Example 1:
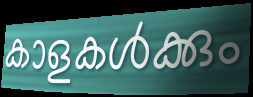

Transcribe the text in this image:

കാളകൾക്കും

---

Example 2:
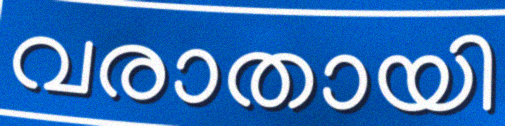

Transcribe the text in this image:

വരാതായി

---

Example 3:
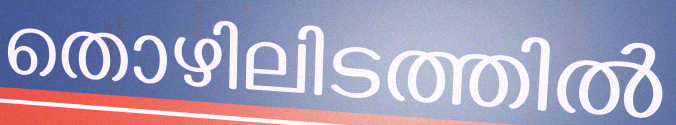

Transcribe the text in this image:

തൊഴിലിടത്തിൽ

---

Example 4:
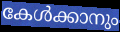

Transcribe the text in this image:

കേൾക്കാനും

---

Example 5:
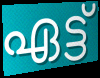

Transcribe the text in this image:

ഏട്ട്